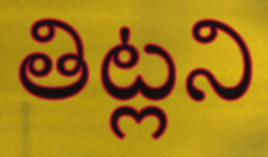
తిట్లని